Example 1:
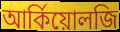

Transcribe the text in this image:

আর্কিয়োলজি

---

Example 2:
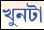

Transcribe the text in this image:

খুনটা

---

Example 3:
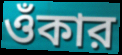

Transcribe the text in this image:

ওঁকার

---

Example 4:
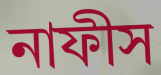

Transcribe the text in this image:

নাফীস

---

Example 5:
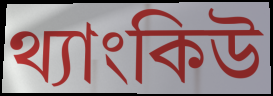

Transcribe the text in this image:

থ্যাংকিউ